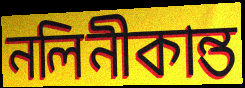
নলিনীকান্ত